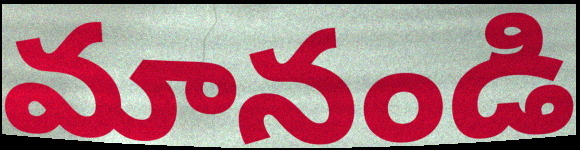
మానండి